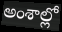
అంశాల్లో